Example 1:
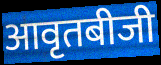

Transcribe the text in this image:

आवृतबीजी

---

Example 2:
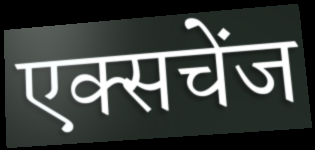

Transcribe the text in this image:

एक्सचेंज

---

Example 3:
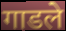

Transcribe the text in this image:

गाडले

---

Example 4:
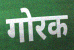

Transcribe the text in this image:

गोरक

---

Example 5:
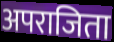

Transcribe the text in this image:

अपराजिता